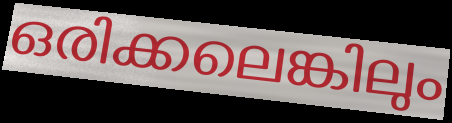
ഒരിക്കലെങ്കിലും